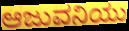
ಆಜುವನಿಯು